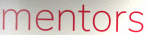
mentors